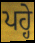
ਪਹ੍ਹੇ